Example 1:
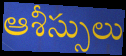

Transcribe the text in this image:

ఆశీస్సులు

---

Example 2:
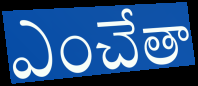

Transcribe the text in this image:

ఎంచేతా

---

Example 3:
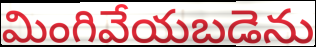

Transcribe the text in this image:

మింగివేయబడెను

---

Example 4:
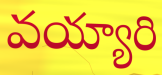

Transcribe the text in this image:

వయ్యారి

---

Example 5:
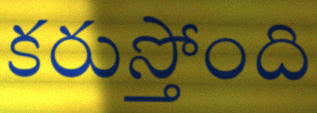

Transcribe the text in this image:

కరుస్తోంది